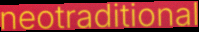
neotraditional